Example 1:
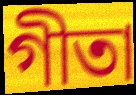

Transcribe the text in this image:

গীতা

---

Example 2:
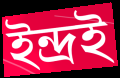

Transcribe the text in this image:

ইন্দ্ৰই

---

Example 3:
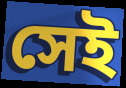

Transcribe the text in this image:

সেই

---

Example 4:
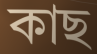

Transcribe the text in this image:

কাছ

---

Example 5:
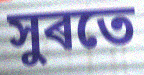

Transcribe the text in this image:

সুৰতে